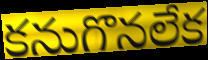
కనుగొనలేక